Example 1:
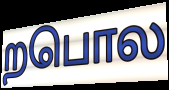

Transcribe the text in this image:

றபொல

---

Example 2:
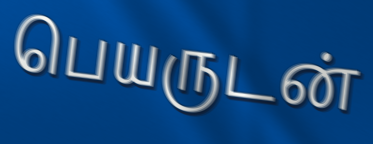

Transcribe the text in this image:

பெயருடன்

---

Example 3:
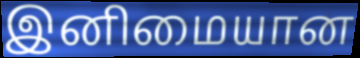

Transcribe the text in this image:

இனிமையான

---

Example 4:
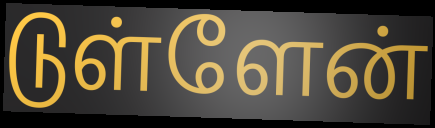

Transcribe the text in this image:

டுள்ளேன்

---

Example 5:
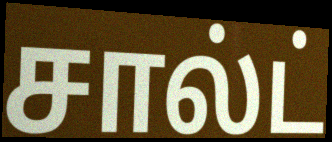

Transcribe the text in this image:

சால்ட்